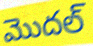
మొదల్